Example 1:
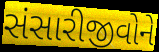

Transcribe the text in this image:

સંસારીજીવોને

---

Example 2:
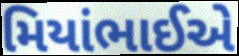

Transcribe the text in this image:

મિયાંભાઈએ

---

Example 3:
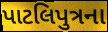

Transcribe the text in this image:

પાટલિપુત્રના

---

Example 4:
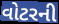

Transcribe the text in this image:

વોટરની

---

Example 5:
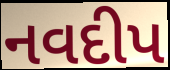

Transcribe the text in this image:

નવદીપ